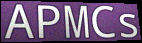
APMCs